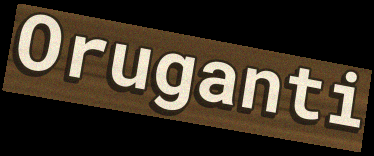
Oruganti